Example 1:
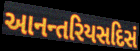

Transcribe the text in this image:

આનન્તરિયસદિસં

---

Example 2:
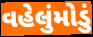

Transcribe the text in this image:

વહેલુંમોડું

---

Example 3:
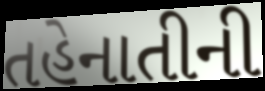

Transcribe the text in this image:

તહેનાતીની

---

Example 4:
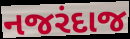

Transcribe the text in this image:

નજરંદાજ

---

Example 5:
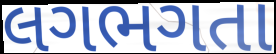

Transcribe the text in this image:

લગભગતા